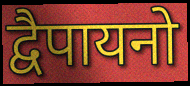
द्वैपायनो